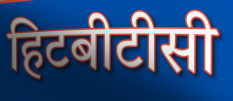
हिटबीटीसी